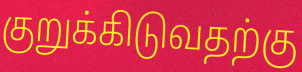
குறுக்கிடுவதற்கு